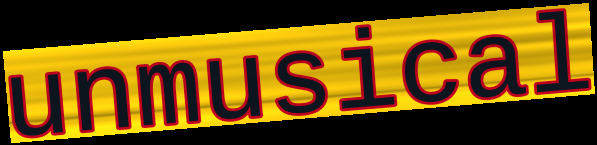
unmusical